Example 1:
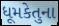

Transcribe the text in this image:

ધૂમકેતુના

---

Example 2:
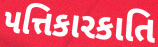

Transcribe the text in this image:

પત્તિકારકાતિ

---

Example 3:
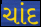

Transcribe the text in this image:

ચાંદ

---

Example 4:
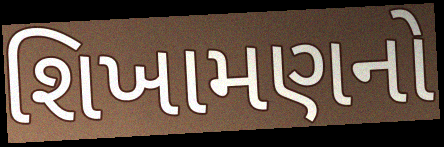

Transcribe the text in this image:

શિખામણનો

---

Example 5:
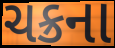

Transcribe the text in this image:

ચક્રના